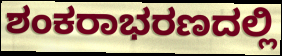
ಶಂಕರಾಭರಣದಲ್ಲಿ